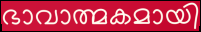
ഭാവാത്മകമായി